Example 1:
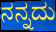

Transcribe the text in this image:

ನನ್ನದು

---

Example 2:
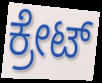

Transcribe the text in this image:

ಕ್ರೇಟ್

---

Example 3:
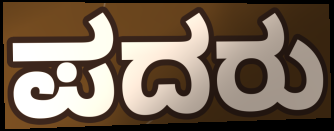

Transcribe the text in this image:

ಪದರು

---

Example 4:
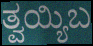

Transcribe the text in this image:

ತ್ವಯ್ಯಿಬ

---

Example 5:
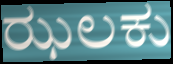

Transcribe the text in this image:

ಝಲಕು